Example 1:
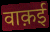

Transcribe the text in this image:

वाक़ई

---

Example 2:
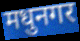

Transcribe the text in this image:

मधुनगर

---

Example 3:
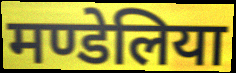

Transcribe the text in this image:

मण्डेलिया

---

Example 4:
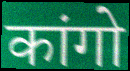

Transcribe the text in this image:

कांगो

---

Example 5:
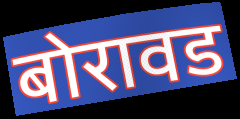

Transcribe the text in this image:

बोरावड